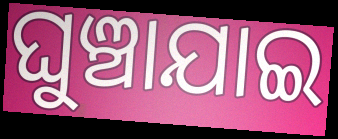
ଘୁଞ୍ଚାଯାଇ